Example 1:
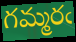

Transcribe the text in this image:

గమ్మరఁ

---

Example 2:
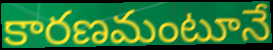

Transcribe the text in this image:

కారణమంటూనే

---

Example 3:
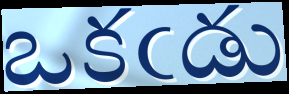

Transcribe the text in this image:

ఒకఁడు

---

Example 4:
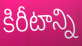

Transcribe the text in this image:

కిరీటాన్ని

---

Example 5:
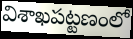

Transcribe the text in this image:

విశాఖపట్టణంలో